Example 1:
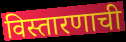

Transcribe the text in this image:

विस्तारणाची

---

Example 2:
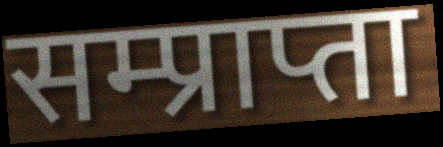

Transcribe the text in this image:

सम्प्राप्ता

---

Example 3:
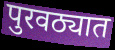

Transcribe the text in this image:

पुरवठ्यात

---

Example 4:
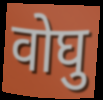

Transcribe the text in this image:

वोघु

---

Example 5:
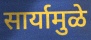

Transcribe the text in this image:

सार्यामुळे